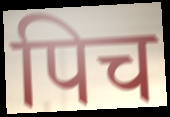
पिच